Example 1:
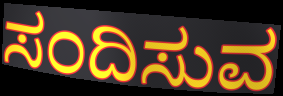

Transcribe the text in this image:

ಸಂದಿಸುವ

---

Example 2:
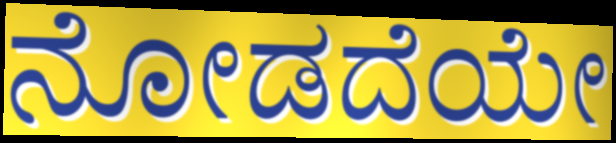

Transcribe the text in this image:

ನೋಡದೆಯೇ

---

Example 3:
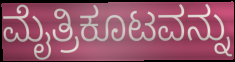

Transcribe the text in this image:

ಮೈತ್ರಿಕೂಟವನ್ನು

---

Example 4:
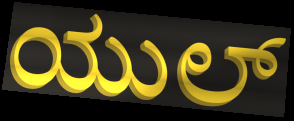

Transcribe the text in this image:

ಯುಲ್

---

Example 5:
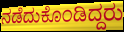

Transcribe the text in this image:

ನಡೆದುಕೊಂಡಿದ್ದರು